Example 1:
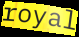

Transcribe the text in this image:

royal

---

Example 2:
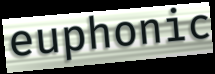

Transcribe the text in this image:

euphonic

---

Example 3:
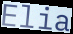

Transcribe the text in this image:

Elia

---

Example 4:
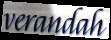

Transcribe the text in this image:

verandah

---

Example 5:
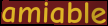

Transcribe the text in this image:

amiable